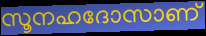
സൂനഹദോസാണ്